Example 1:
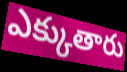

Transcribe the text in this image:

ఎక్కుతారు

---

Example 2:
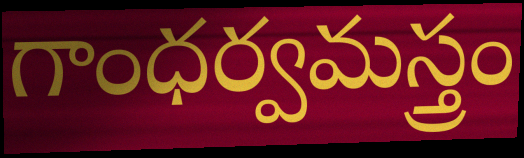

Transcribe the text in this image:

గాంధర్వమస్త్రం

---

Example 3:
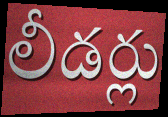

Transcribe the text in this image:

లీడర్లు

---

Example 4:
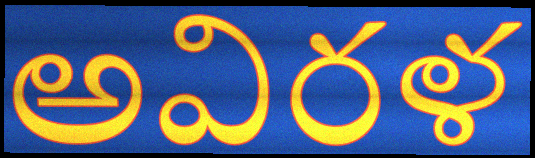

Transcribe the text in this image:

అవిరళ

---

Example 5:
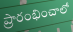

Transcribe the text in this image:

ప్రారంభించాలో